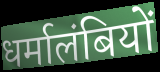
धर्मालंबियों